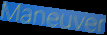
Maneuver